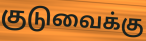
குடுவைக்கு